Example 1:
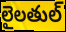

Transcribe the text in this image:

లైలతుల్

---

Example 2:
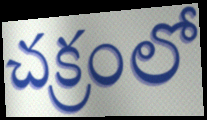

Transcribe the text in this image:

చక్రంలో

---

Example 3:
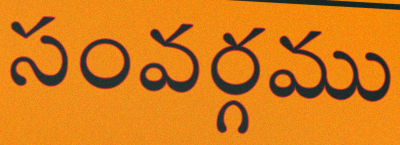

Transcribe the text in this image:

సంవర్గము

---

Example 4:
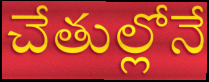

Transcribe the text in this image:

చేతుల్లోనే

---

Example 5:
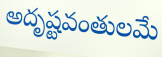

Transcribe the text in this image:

అదృష్టవంతులమే